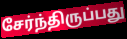
சேர்ந்திருப்பது